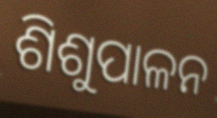
ଶିଶୁପାଳନ